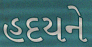
હદયને